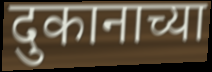
दुकानाच्या